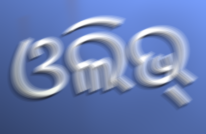
ଓଲିଭ୍